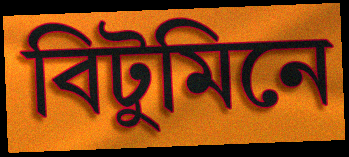
বিটুমিনে